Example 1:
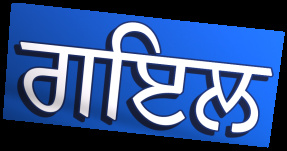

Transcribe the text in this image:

ਗਇਲ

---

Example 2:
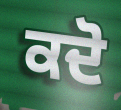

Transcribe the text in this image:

ਕਦੋ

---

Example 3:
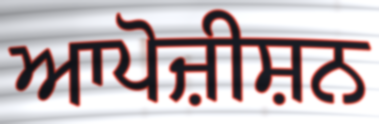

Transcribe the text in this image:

ਆਪੋਜ਼ੀਸ਼ਨ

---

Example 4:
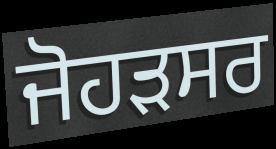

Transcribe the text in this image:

ਜੋਹੜਸਰ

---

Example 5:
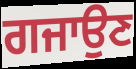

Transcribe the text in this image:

ਗਜਾਉਣ